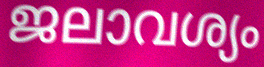
ജലാവശ്യം